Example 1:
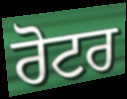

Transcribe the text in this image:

ਰੋਟਰ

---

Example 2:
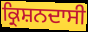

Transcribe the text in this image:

ਕ੍ਰਿਸ਼ਨਦਾਸੀ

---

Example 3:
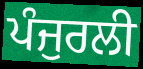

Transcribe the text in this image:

ਪੰਜੁਰਲੀ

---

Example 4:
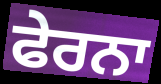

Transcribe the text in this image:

ਫੇਰਨਾ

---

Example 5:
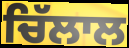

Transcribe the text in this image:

ਚਿੱਲਾਲ